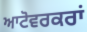
ਆਟੋਵਰਕਰਾਂ